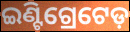
ଇଣ୍ଟିଗ୍ରେଟେଡ଼